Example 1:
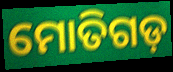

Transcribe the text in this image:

ମୋତିଗଡ଼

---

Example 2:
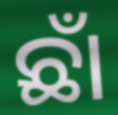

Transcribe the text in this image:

ଛାଁ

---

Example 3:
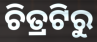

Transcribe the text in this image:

ଚିତ୍ରଟିରୁ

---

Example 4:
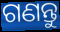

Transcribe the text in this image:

ଗଣନ୍ତୁ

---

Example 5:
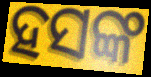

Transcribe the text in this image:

ହସଙ୍କ